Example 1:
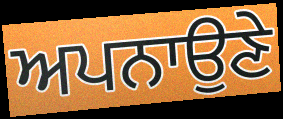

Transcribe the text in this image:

ਅਪਨਾਉਣੇ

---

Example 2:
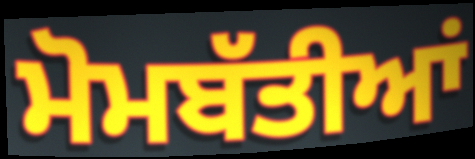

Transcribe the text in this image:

ਮੋਮਬੱਤੀਆਂ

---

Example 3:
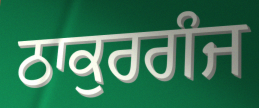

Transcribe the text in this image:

ਠਾਕੁਰਗੰਜ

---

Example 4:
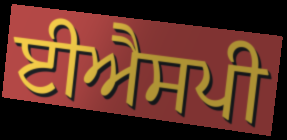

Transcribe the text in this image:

ਈਐਸਪੀ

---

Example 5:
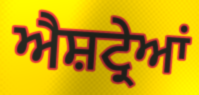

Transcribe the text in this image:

ਐਸ਼ਟ੍ਰੇਆਂ